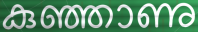
കുഞ്ഞാണു